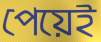
পেয়েই